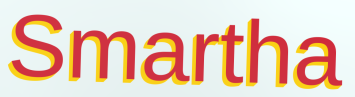
Smartha